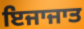
ਇਜਾਜਾਤ